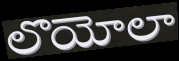
లొయోలా